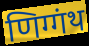
णिग्गंथ